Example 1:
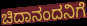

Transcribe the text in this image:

ಚಿದಾನಂದನಿಗೆ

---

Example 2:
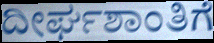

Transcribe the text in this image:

ದೀರ್ಘಶಾಂತಿಗೆ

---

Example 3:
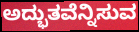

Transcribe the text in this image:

ಅದ್ಭುತವೆನ್ನಿಸುವ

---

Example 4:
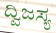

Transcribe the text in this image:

ದ್ವಿಜಸ್ಯ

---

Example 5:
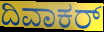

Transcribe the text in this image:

ದಿವಾಕರ್